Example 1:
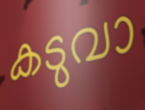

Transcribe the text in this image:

കടുവാ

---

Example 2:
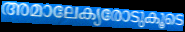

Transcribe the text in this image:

അമാലേക്യരോടുകൂടെ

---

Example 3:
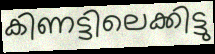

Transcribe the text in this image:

കിണട്ടിലെക്കിട്ടു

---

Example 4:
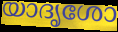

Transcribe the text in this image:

യാദൃശോ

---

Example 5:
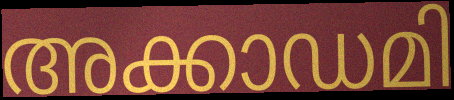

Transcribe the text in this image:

അക്കാഡമി